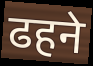
ढहने